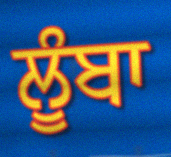
ਲੂੰਬਾ